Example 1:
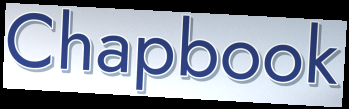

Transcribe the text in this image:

Chapbook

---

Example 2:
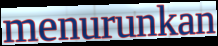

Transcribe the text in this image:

menurunkan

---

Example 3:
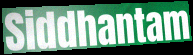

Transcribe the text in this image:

Siddhantam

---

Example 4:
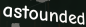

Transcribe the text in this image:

astounded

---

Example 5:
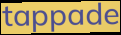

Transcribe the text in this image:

tappade